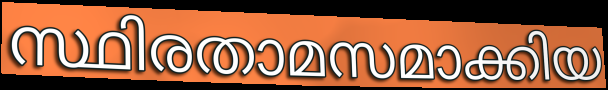
സ്ഥിരതാമസമാക്കിയ